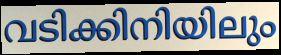
വടിക്കിനിയിലും